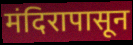
मंदिरापासून